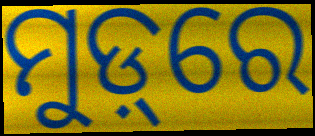
ମୁଡ଼୍‌ରେ